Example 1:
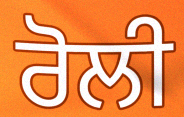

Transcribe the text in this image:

ਰੋਲੀ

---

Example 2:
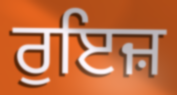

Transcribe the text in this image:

ਰੁਇਜ਼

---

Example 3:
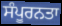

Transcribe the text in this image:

ਸੰਪੂਰਨਤਾ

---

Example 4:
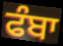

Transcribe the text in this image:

ਫੰਬਾ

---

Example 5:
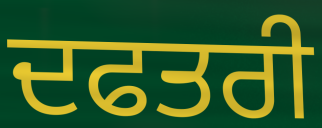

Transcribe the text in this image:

ਦਫਤਰੀ